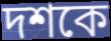
দশকে